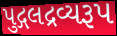
પુદ્ગલદ્રવ્યરૂપ